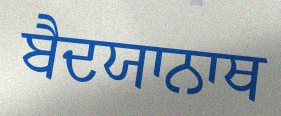
ਬੈਦਯਾਨਾਥ